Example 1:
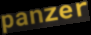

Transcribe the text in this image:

panzer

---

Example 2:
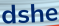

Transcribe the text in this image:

dshe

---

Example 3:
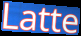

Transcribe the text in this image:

Latte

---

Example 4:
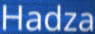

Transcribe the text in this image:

Hadza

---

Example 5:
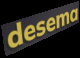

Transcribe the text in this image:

desema